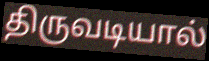
திருவடியால்